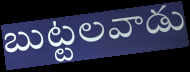
బుట్టలవాడు